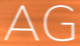
AG